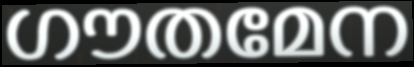
ഗൗതമേന